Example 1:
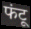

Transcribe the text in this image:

फंटू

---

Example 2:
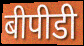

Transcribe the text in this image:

बीपीडी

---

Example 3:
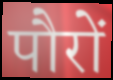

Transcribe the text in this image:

पौरों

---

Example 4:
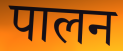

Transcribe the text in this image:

पालन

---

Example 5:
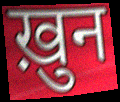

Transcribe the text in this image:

ख़ुन